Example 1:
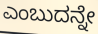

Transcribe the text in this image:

ಎಂಬುದನ್ನೇ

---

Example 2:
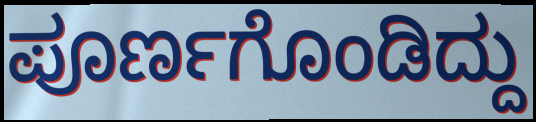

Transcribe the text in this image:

ಪೂರ್ಣಗೊಂಡಿದ್ದು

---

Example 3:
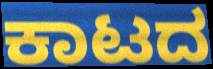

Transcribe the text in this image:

ಕಾಟದ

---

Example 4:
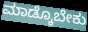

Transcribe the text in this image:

ಮಾಡ್ಕೊಬೇಕು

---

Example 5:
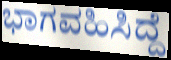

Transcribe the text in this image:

ಭಾಗವಹಿಸಿದ್ದೆ